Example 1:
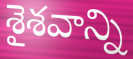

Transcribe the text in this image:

శైశవాన్ని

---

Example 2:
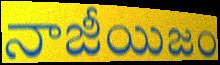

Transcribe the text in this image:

నాజీయిజం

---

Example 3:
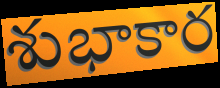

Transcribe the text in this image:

శుభాకార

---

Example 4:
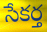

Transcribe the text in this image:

సేకర్త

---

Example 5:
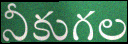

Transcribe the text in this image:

నీకుగల